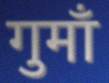
गुमाँ